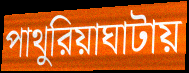
পাথুরিয়াঘাটায়